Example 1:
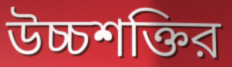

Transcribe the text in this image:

উচ্চশক্তির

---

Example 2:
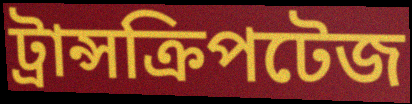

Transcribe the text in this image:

ট্রান্সক্রিপটেজ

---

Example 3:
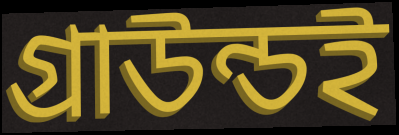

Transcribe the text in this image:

গ্রাউন্ডই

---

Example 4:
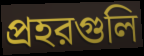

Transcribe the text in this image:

প্রহরগুলি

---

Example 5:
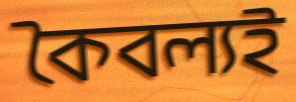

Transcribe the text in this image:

কৈবল্যই